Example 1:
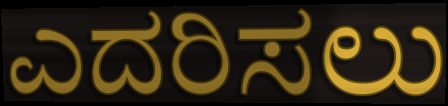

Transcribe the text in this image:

ಎದರಿಸಲು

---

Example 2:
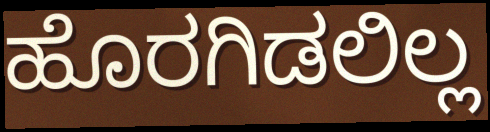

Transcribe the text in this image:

ಹೊರಗಿಡಲಿಲ್ಲ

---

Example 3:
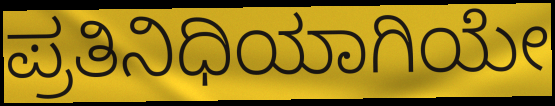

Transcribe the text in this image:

ಪ್ರತಿನಿಧಿಯಾಗಿಯೇ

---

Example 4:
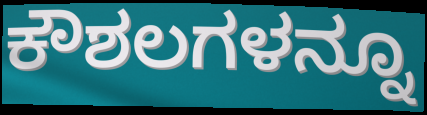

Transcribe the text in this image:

ಕೌಶಲಗಳನ್ನೂ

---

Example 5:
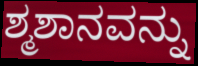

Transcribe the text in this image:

ಶ್ಮಶಾನವನ್ನು